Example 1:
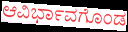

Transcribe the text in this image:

ಆವಿರ್ಭಾವಗೊಂಡ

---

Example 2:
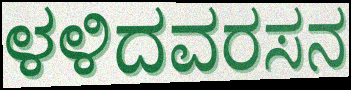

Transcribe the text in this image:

ಳಳಿದವರಸನ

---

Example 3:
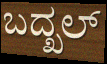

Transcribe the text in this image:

ಬದ್ಖಲ್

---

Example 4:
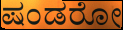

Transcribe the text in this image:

ಷಂಡರೋ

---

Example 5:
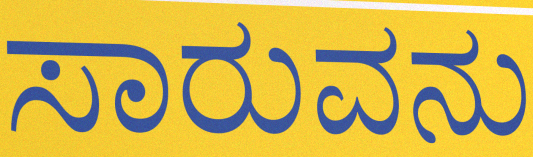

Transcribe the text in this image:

ಸಾರುವನು